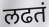
लढतं